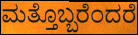
ಮತ್ತೊಬ್ಬರೆಂದರೆ